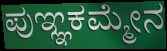
ಪುಞ್ಞಕಮ್ಮೇನ